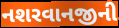
નશરવાનજીની